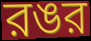
রঙর